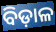
ବିଡ଼ାଳ